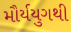
મૌર્યયુગથી